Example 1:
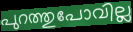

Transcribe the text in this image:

പുറത്തുപോവില്ല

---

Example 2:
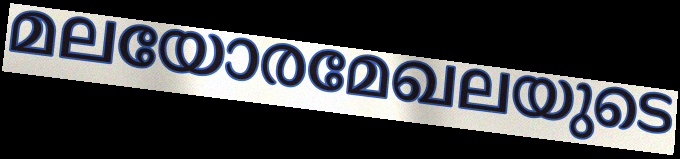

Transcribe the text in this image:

മലയോരമേഖലയുടെ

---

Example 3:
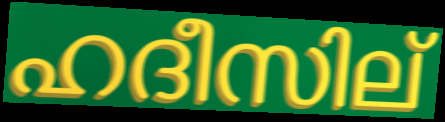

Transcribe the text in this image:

ഹദീസില്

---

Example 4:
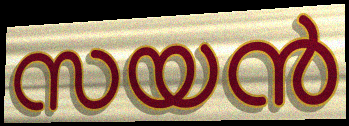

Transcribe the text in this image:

സയൻ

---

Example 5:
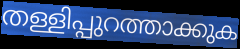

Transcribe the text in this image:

തള്ളിപ്പുറത്താക്കുക